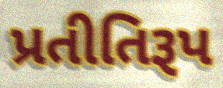
પ્રતીતિરૂપ